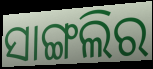
ସାଙ୍ଗଲିର